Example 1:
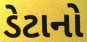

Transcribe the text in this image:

ડેટાનો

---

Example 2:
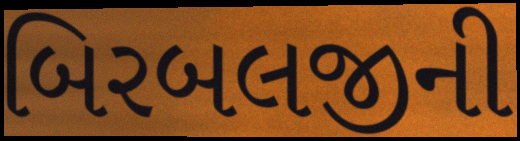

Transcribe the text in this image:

બિરબલજીની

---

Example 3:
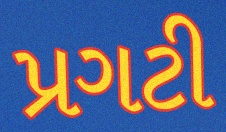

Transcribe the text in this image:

પ્રગટી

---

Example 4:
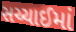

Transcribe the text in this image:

સચ્ચાઈમાં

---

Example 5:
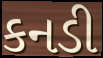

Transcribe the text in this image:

કનડી